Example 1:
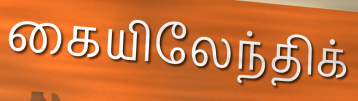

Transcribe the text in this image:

கையிலேந்திக்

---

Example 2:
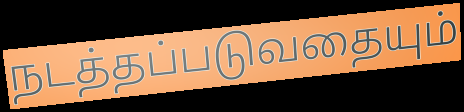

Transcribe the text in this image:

நடத்தப்படுவதையும்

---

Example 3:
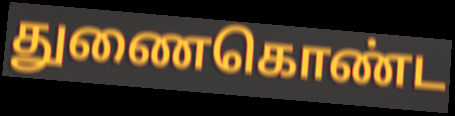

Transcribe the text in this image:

துணைகொண்ட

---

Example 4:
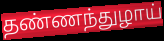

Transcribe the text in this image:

தண்ணந்துழாய்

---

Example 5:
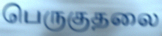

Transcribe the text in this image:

பெருகுதலை